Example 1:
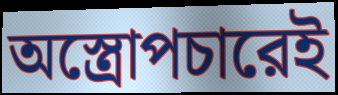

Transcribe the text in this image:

অস্ত্রোপচারেই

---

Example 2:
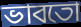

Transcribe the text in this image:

ভাবতো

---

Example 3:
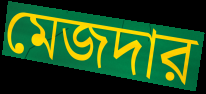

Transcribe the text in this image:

মেজদার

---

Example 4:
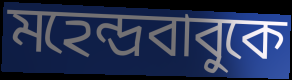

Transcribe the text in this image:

মহেন্দ্রবাবুকে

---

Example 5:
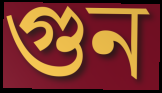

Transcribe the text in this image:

গুন